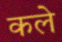
कले